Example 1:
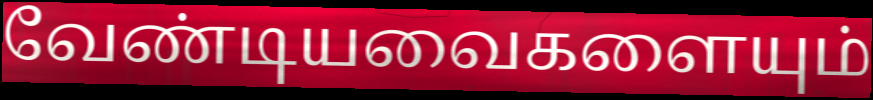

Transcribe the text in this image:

வேண்டியவைகளையும்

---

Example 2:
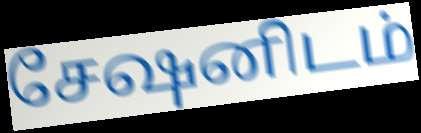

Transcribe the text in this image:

சேஷனிடம்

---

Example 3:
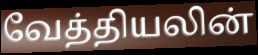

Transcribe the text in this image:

வேத்தியலின்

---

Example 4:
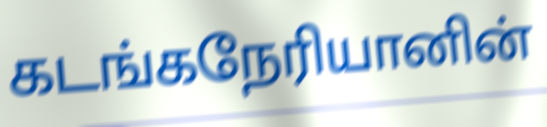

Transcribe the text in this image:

கடங்கநேரியானின்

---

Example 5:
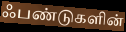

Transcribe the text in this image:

ஃபண்டுகளின்